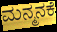
ಮನ್ಮನಕೆ